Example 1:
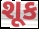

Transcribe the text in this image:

શૂક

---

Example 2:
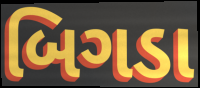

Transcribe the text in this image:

બિગડા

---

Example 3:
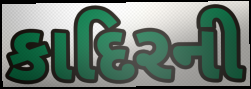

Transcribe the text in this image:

કાદિરની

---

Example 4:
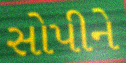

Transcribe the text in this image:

સોપીને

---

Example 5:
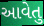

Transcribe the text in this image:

આવેતુ